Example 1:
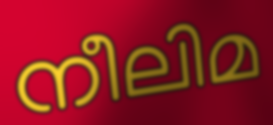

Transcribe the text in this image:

നീലിമ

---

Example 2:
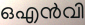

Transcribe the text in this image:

ഒഎൻവി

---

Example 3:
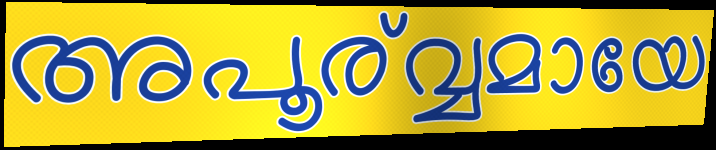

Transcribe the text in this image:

അപൂര്വ്വമായേ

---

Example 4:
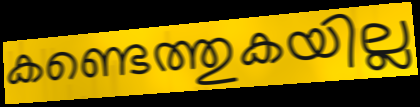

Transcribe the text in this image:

കണ്ടെത്തുകയില്ല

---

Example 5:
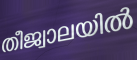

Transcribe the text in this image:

തീജ്വാലയിൽ